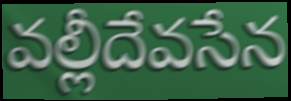
వల్లీదేవసేన